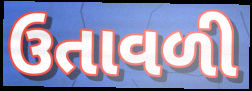
ઉતાવળી